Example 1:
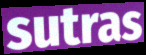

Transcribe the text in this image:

sutras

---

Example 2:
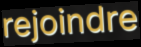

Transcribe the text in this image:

rejoindre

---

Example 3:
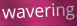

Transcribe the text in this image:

wavering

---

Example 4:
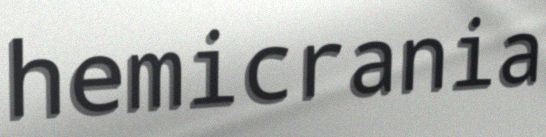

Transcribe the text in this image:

hemicrania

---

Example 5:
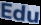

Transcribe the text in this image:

Edu